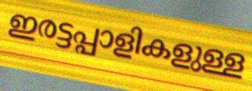
ഇരട്ടപ്പാളികളുള്ള